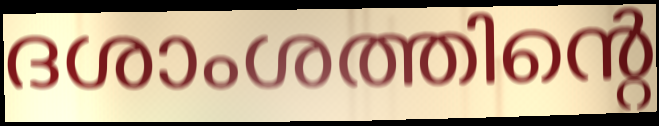
ദശാംശത്തിന്റെ